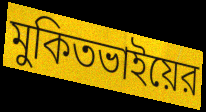
মুকিতভাইয়ের